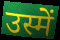
उस्में